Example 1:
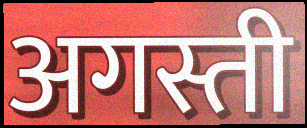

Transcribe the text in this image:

अगस्ती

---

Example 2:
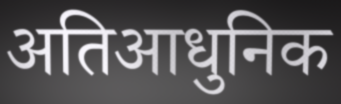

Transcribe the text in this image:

अतिआधुनिक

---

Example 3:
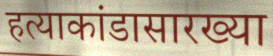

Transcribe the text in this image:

हत्याकांडासारख्या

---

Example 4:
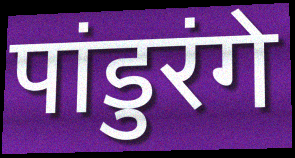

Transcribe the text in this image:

पांडुरंगे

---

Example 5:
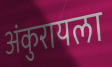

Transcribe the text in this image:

अंकुरायला